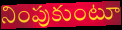
నింపుకుంటూ